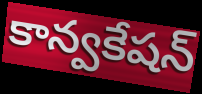
కాన్వకేషన్